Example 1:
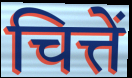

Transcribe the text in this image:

चित्तें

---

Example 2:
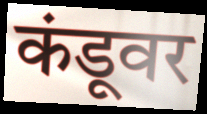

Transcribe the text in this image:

कंडूवर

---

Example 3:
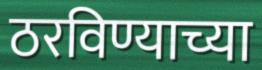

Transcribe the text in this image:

ठरविण्याच्या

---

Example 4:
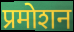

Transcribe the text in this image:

प्रमोशन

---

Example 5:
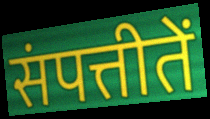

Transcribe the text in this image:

संपत्तीतें